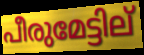
പീരുമേട്ടില്